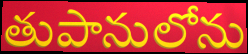
తుపానులోను